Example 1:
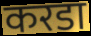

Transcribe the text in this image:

करडा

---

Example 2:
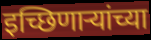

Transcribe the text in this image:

इच्छिणार्‍यांच्या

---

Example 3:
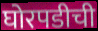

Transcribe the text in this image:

घोरपडीची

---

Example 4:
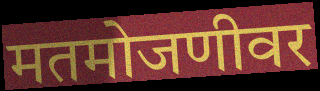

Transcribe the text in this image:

मतमोजणीवर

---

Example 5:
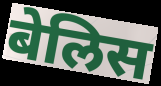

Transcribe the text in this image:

बेलिस